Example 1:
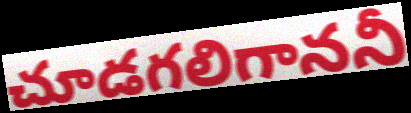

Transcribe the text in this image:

చూడగలిగాననీ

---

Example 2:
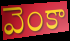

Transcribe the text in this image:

వెంకా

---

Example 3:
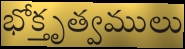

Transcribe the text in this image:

భోక్తృత్వములు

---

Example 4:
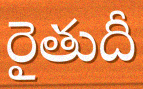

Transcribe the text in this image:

రైతుదీ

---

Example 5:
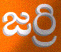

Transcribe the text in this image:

జర్రి